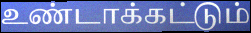
உண்டாக்கட்டும்